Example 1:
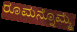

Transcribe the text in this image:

ರೂಮನ್ನೊಮ್ಮೆ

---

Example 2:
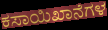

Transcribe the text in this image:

ಕಸಾಯಿಖಾನೆಗಳ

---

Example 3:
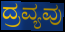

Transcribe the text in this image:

ದ್ರವ್ಯವು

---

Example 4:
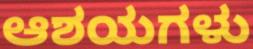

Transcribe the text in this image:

ಆಶಯಗಳು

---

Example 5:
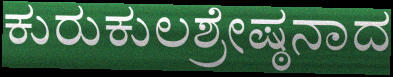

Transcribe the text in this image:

ಕುರುಕುಲಶ್ರೇಷ್ಠನಾದ